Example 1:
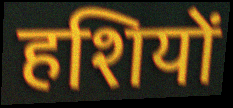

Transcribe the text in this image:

हशियों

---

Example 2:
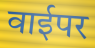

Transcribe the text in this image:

वाईपर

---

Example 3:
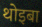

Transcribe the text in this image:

थोइबा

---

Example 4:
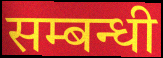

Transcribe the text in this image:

सम्बन्धी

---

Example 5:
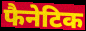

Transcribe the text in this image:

फैनेटिक